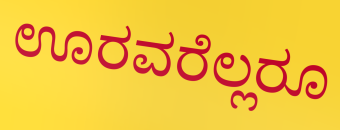
ಊರವರೆಲ್ಲರೂ